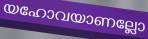
യഹോവയാണല്ലോ